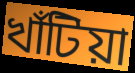
খাঁটিয়া